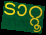
ടാറ്റൂ